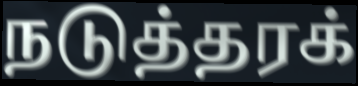
நடுத்தரக்